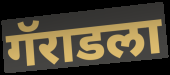
गॅराडला